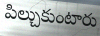
పిల్చుకుంటారు